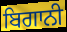
ਬਿਗਾਨੀ